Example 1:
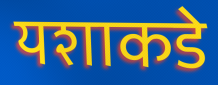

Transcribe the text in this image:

यशाकडे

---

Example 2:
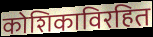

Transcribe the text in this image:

कोशिकाविरहित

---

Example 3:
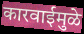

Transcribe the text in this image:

कारवाईमुळे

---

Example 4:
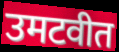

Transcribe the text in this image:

उमटवीत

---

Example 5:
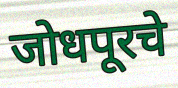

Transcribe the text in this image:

जोधपूरचे